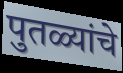
पुतळ्यांचे